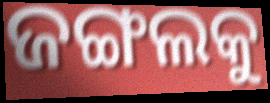
ଜଙ୍ଗଲକୁ